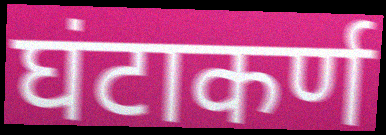
घंटाकर्ण